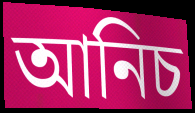
আনিচ